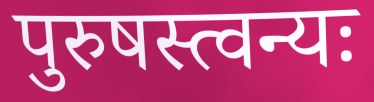
पुरुषस्त्वन्यः